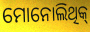
ମୋନୋଲିଥିକ୍